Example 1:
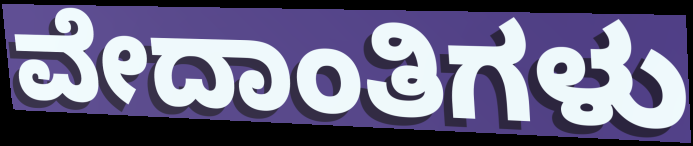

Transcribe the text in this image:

ವೇದಾಂತಿಗಳು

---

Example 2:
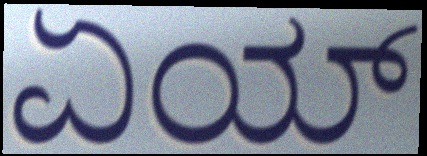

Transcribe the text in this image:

ಏಯ್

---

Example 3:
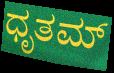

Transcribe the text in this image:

ಧೃತಮ್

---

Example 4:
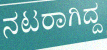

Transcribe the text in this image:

ನಟರಾಗಿದ್ದ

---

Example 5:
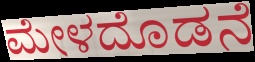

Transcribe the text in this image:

ಮೇಳದೊಡನೆ